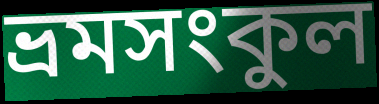
ভ্রমসংকুল